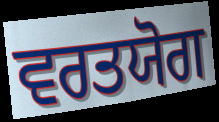
ਵਰਤਯੋਗ